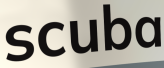
scuba